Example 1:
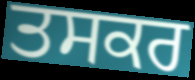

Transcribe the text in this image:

ਤਸਕਰ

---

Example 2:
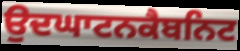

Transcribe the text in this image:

ਉਦਘਾਟਨਕੈਬਨਿਟ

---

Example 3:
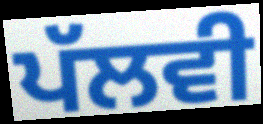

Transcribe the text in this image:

ਪੱਲਵੀ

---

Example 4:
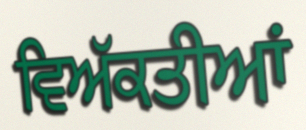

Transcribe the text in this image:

ਵਿਅੱਕਤੀਆਂ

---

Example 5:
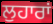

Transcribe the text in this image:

ਲੁਹਾਰਾਂ